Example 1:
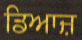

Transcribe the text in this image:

ਡਿਆਜ਼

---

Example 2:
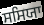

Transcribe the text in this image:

ਸਸਿਯਾ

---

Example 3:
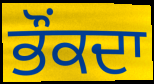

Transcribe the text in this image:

ਭੌਂਕਦਾ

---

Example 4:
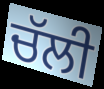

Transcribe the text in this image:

ਚੱਲੀ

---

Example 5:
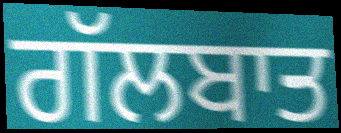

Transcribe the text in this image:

ਗੱਲਬਾਤ